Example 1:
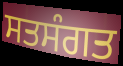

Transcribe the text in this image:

ਸਤਸੰਗਤ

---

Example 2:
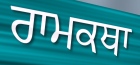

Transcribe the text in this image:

ਰਾਮਕਥਾ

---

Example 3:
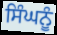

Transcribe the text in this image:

ਸਿੰਘਨੂੰ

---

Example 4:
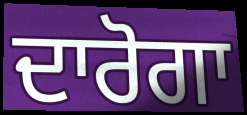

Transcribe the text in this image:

ਦਾਰੋਗਾ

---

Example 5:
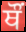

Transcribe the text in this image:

ਥੌਂ